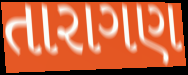
તારાગણ